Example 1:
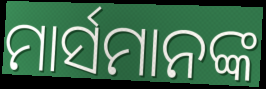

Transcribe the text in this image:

ମାର୍ସମାନଙ୍କ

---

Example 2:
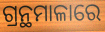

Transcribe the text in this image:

ଗ୍ରନ୍ଥମାଳାରେ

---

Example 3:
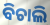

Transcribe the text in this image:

ବିଚାଲି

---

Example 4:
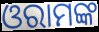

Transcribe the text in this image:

ଓରାମଙ୍କ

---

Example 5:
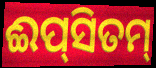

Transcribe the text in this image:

ଈପ୍‌ସିତମ୍